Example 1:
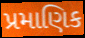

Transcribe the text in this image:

પ્રમાણિક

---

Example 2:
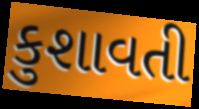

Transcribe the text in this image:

કુશાવતી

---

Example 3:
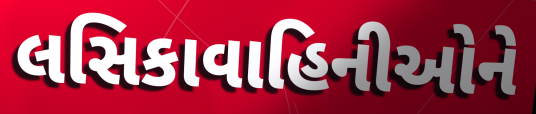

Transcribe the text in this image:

લસિકાવાહિનીઓને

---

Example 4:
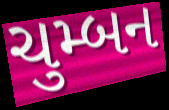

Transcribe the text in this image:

ચુમ્બન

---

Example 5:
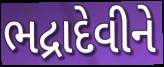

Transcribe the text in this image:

ભદ્રાદેવીને